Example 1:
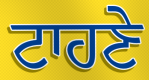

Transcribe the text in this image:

ਟਾਹਣੇ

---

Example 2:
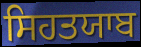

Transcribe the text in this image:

ਸਿਹਤਯਾਬ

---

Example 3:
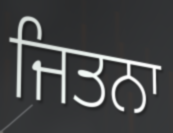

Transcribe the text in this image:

ਜਿਤਨਾ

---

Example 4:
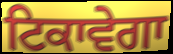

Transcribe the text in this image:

ਟਿਕਾਵੇਗਾ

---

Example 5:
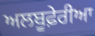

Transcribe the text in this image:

ਅਲਬੂਫ਼ੇਰੀਆ